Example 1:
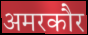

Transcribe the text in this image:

अमरकौर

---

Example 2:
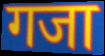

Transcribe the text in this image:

गजा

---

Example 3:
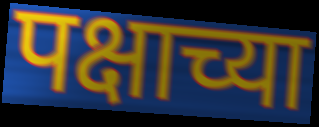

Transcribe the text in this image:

पक्षाच्या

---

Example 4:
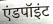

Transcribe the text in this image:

एंडपॉइंट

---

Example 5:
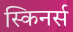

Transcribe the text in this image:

स्किनर्स